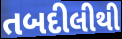
તબદીલીથી